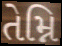
તેમ્નિ